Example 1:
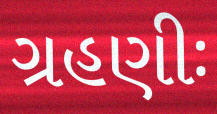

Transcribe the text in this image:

ગ્રહણીઃ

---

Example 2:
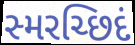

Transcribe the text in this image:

સ્મરચ્છિદં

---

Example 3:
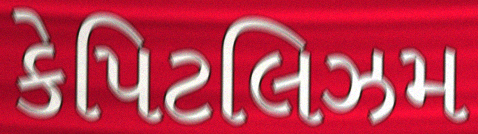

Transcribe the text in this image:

કેપિટલિઝમ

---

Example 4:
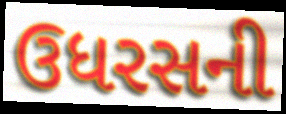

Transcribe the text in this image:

ઉધરસની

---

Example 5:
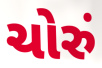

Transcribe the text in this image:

ચોરું